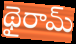
థైరామ్